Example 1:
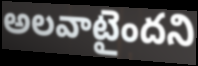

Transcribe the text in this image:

అలవాటైందని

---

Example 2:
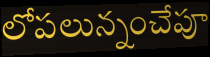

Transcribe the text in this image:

లోపలున్నంచేపూ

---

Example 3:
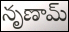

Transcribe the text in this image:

నృణామ్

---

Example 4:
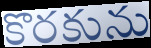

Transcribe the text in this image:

కొరకును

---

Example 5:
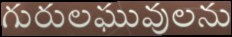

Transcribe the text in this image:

గురులఘువులను